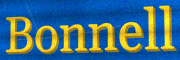
Bonnell